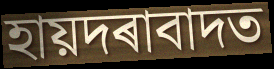
হায়দৰাবাদত